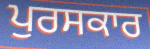
ਪੁਰਸਕਾਰ